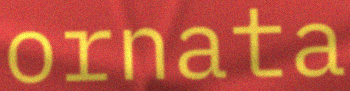
ornata